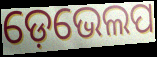
ଡ଼େଭେଲପ